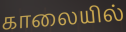
காலையில்